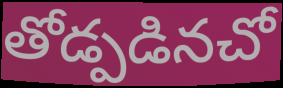
తోడ్పడినచో